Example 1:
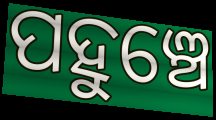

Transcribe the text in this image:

ପହୁଞ୍ଚେ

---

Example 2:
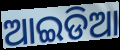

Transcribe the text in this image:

ଆଇଡିଆ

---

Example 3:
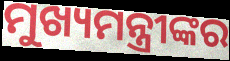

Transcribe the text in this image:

ମୁଖ୍ୟମନ୍ତ୍ରୀଙ୍କର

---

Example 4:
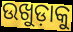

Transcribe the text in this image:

ଉଖୁଡ଼ାକୁ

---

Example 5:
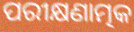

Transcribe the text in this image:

ପରୀକ୍ଷଣାତ୍ମକ